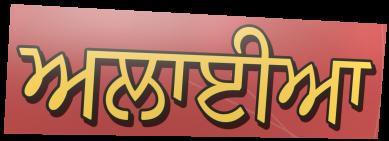
ਅਲਾਈਆ